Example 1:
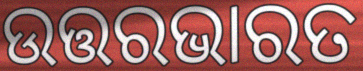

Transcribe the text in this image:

ଉତ୍ତରଭାରତ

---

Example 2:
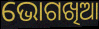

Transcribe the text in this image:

ଭୋଗଖିଆ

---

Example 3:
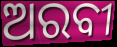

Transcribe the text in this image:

ଅରବୀ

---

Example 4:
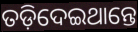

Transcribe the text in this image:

ତଡ଼ିଦେଇଥାନ୍ତେ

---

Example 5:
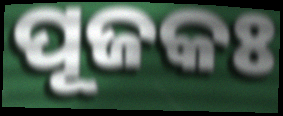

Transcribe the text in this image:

ପୂଜକଃ